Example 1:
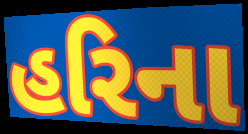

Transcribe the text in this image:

હરિના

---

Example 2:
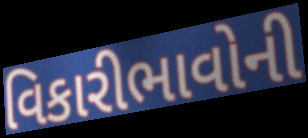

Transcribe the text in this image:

વિકારીભાવોની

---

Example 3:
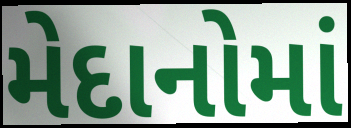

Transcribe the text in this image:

મેદાનોમાં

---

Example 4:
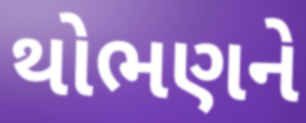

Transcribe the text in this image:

થોભણને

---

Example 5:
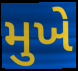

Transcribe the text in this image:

મુખે